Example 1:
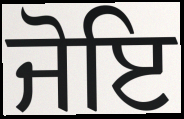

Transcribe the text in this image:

ਜੋਇ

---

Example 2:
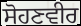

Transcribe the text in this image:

ਸੋਹਣਵੀਰ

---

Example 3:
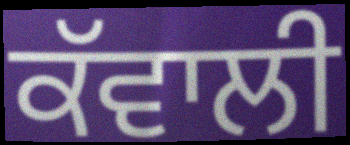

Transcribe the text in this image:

ਕੱਵਾਲੀ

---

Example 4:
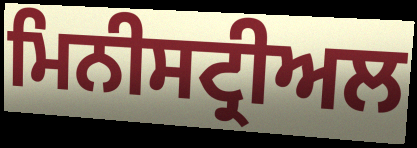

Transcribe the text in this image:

ਮਿਨੀਸਟ੍ਰੀਅਲ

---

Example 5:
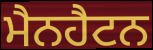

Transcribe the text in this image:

ਮੈਨਹੈਟਨ